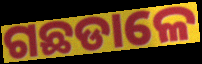
ଗଛଡାଳେ